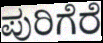
ಪುರಿಗೆರೆ